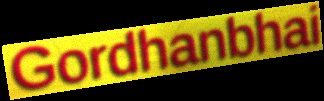
Gordhanbhai